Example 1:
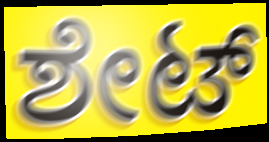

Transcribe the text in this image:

ಶೇಟ್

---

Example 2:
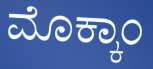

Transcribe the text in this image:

ಮೊಕ್ಕಾಂ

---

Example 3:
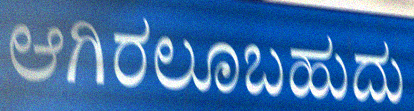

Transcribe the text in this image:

ಆಗಿರಲೂಬಹುದು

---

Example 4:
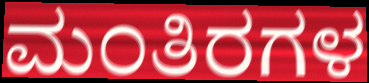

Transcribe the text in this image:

ಮಂತಿರಗಳ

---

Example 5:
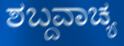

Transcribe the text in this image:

ಶಬ್ದವಾಚ್ಯ